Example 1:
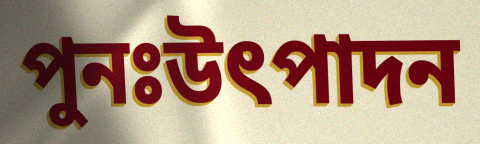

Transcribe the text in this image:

পুনঃউৎপাদন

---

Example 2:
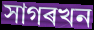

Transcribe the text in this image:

সাগৰখন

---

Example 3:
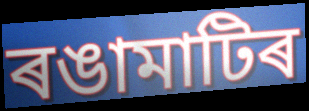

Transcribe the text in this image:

ৰঙামাটিৰ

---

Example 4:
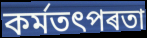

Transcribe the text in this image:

কৰ্মতৎপৰতা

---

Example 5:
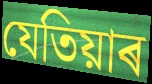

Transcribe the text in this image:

যেতিয়াৰ